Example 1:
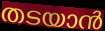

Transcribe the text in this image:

തടയാൻ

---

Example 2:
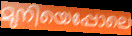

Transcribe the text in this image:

മുനിയെപ്പോലെ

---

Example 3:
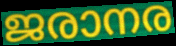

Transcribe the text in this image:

ജരാനര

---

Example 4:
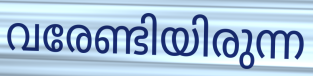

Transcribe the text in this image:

വരേണ്ടിയിരുന്ന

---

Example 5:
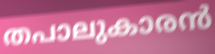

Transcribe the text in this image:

തപാലുകാരൻ